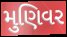
મુણિવર